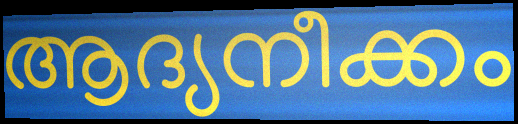
ആദ്യനീക്കം